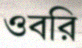
ওবরি